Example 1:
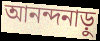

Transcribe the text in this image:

আনন্দনাড়ু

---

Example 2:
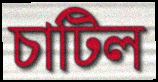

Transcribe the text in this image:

চাটিল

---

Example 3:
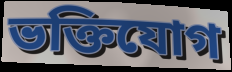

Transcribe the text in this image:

ভক্তিযোগ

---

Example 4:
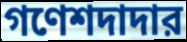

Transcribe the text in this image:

গণেশদাদার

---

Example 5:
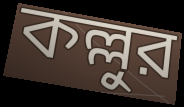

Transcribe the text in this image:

কল্লুর